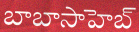
బాబాసాహెబ్